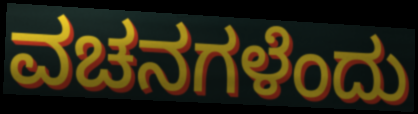
ವಚನಗಳೆಂದು